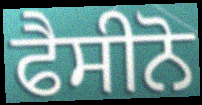
ਫੈਸੀਨੋ